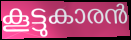
കൂട്ടുകാരൻ